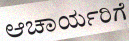
ಆಚಾರ್ಯರಿಗೆ